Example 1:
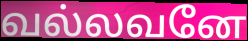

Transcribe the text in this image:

வல்லவனே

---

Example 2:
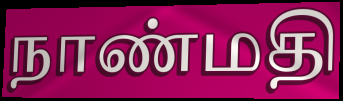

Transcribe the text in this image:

நாண்மதி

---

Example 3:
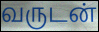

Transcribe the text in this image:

வருடன்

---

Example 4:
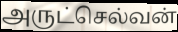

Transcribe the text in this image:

அருட்செல்வன்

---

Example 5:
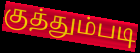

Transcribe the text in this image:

குத்தும்படி